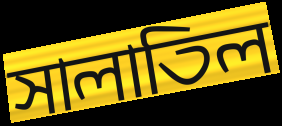
সালাতিল